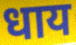
धाय